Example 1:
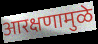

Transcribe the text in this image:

आरक्षणामुळे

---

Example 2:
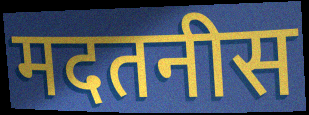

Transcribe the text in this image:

मदतनीस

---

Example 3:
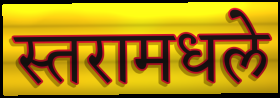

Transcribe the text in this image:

स्तरामधले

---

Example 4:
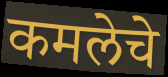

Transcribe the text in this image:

कमलेचे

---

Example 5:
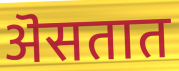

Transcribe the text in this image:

ऄसतात